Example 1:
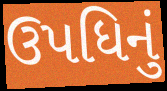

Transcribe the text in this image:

ઉપધિનું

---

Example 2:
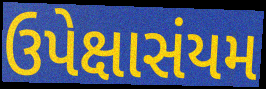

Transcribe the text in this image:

ઉપેક્ષાસંયમ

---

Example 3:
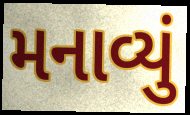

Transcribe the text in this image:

મનાવ્યું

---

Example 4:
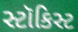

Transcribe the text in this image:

સ્ટૉકિસ્ટ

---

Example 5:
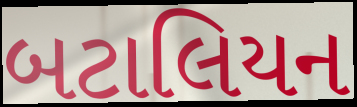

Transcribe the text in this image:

બટાલિયન